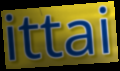
ittai